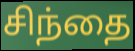
சிந்தை